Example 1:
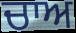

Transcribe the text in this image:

ਚਾਅ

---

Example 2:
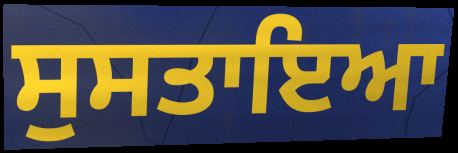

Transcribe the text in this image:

ਸੁਸਤਾਇਆ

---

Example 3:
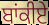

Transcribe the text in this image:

ਬਾਂਕੀਏ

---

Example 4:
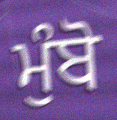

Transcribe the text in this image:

ਮੁੰਬੋ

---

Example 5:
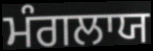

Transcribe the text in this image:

ਮੰਗਲਾਯ